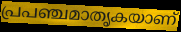
പ്രപഞ്ചമാതൃകയാണ്